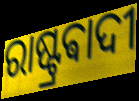
ରାଷ୍ଟ୍ରଵାଦୀ